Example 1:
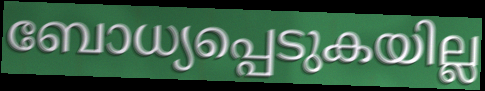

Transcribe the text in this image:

ബോധ്യപ്പെടുകയില്ല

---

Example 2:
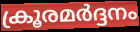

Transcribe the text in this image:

ക്രൂരമർദ്ദനം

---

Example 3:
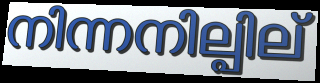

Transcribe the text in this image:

നിന്നനില്പില്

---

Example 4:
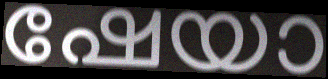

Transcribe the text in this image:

ഷേയാ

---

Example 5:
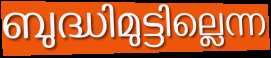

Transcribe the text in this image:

ബുദ്ധിമുട്ടില്ലെന്ന